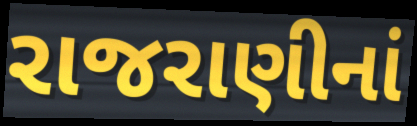
રાજરાણીનાં